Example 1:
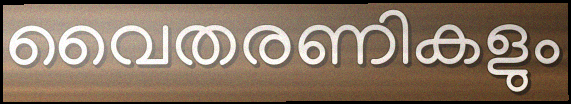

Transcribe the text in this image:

വൈതരണികളും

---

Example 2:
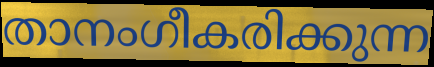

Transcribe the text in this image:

താനംഗീകരിക്കുന്ന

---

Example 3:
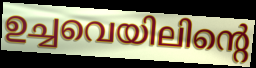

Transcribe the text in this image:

ഉച്ചവെയിലിന്റെ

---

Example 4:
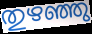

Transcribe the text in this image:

തുഴഞ്ഞു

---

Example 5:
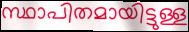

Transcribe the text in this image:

സ്ഥാപിതമായിട്ടുള്ള